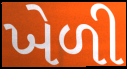
ખેળી